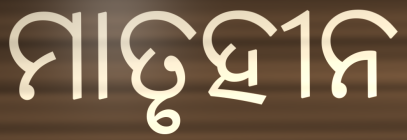
ମାତୃହୀନ